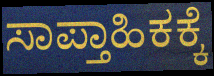
ಸಾಪ್ತಾಹಿಕಕ್ಕೆ